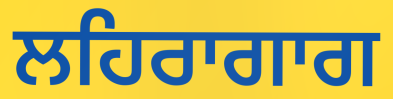
ਲਹਿਰਾਗਾਗ